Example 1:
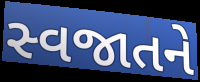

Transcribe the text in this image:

સ્વજાતને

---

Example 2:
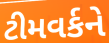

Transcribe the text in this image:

ટીમવર્કને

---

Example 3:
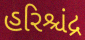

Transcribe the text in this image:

હરિશ્ચંદ્ર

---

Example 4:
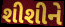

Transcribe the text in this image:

શીશીને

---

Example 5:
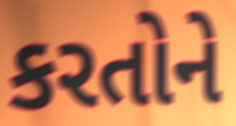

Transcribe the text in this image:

કરતોને